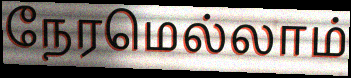
நேரமெல்லாம்